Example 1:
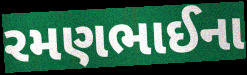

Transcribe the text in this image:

રમણભાઈના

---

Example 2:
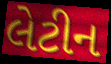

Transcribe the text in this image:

લેટીન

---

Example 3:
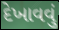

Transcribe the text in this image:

દેખાવવું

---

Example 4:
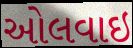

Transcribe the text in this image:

ઓલવાઇ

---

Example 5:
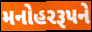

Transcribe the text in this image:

મનોહરરૂપને